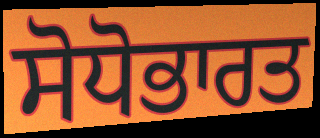
ਸੋਧੋਭਾਰਤ